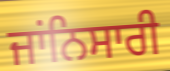
ਜਾਂਨਿਸਾਰੀ